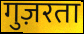
गुज़रता